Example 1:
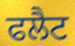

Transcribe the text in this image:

ਫਲੈਟ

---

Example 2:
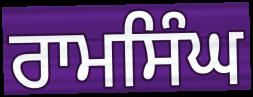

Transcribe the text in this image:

ਰਾਮਸਿੰਘ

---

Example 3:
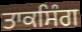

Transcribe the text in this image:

ਤਾਕਸਿੰਗ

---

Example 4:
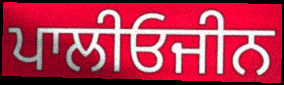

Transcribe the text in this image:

ਪਾਲੀਓਜੀਨ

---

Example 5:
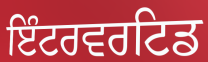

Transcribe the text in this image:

ਇੰਟਰਵਰਟਿਡ